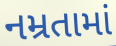
નમ્રતામાં